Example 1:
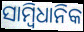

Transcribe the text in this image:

ସାମ୍ବିଧାନିକ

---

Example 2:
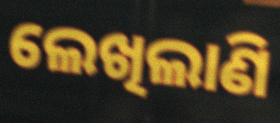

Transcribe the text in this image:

ଲେଖିଲାଣି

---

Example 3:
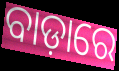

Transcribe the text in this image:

ବାଡ଼ାରେ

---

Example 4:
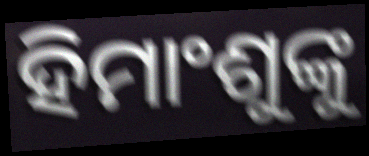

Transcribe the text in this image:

ହିମାଂଶୁଙ୍କୁ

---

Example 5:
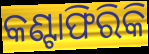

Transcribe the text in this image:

କଣ୍ଟାଫିରିକି